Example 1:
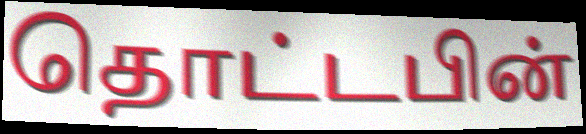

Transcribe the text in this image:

தொட்டபின்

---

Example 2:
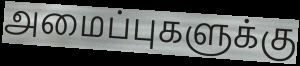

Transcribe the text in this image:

அமைப்புகளுக்கு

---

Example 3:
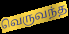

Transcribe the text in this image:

வெருவந்த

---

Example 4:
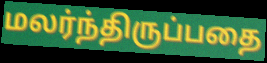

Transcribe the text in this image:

மலர்ந்திருப்பதை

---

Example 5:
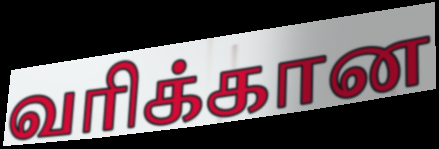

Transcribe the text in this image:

வரிக்கான